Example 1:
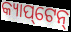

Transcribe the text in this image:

କ୍ୟାପ୍‌ଟେନ୍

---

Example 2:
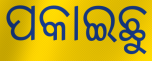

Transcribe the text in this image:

ପକାଇଛୁ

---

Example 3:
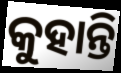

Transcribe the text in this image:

କୁହାନ୍ତି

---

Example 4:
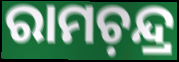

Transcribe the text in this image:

ରାମଚ଼ନ୍ଦ୍ର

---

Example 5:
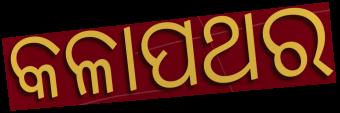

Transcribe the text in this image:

କଳାପଥର